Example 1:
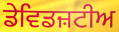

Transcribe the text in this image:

ਡੇਵਿਡਜ਼ਟੀਅ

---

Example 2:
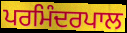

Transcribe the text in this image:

ਪਰਮਿੰਦਰਪਾਲ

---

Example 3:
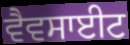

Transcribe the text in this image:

ਵੈਵਸਾਈਟ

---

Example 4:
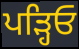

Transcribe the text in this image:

ਪੜ੍ਹਿਓ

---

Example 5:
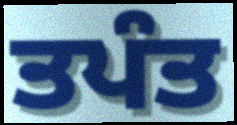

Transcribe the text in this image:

ਤਪੰਤ